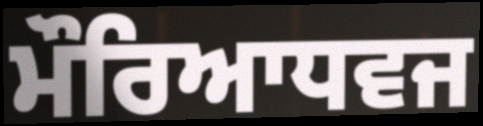
ਮੌਰਿਆਧਵਜ